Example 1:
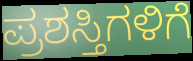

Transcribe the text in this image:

ಪ್ರಶಸ್ತಿಗಳಿಗೆ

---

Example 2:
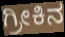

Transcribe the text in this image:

ಗ್ರೀಕಿನ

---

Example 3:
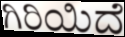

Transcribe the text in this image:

ಗಿರಿಯಿದೆ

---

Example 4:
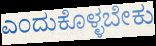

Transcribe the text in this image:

ಎಂದುಕೊಳ್ಳಬೇಕು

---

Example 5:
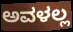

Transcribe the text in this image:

ಅವಳಲ್ಲ